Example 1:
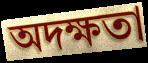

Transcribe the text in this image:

অদক্ষতা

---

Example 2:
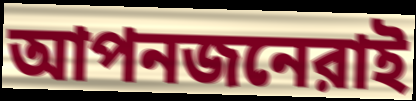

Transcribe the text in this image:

আপনজনেরাই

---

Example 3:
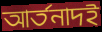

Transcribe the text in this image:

আর্তনাদই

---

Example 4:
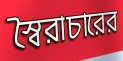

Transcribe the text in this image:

স্বৈরাচারের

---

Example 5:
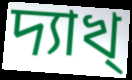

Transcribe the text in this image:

দ্যাখ্